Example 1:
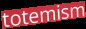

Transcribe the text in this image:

totemism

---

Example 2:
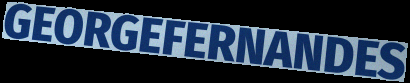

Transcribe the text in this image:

GEORGEFERNANDES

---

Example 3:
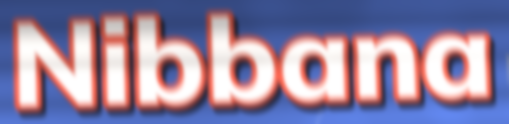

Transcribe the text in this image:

Nibbana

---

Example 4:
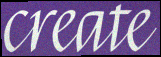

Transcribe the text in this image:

create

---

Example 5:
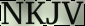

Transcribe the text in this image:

NKJV